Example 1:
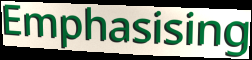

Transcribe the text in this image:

Emphasising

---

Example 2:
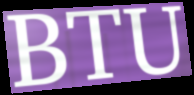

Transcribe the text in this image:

BTU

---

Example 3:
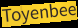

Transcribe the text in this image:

Toyenbee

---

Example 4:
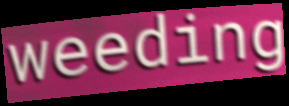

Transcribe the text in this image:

weeding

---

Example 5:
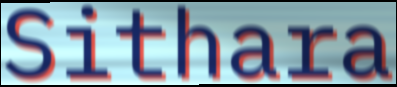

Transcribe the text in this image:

Sithara